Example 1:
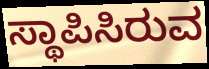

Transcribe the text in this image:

ಸ್ಥಾಪಿಸಿರುವ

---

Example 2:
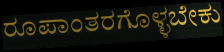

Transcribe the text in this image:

ರೂಪಾಂತರಗೊಳ್ಳಬೇಕು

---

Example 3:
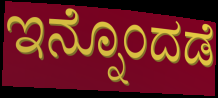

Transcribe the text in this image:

ಇನ್ನೊಂದಡೆ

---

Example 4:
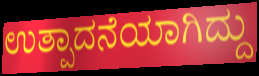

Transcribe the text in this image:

ಉತ್ಪಾದನೆಯಾಗಿದ್ದು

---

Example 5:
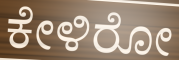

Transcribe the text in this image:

ಕೇಳಿರೋ